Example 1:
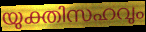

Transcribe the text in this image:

യുക്തിസഹവും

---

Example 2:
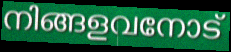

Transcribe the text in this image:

നിങ്ങളവനോട്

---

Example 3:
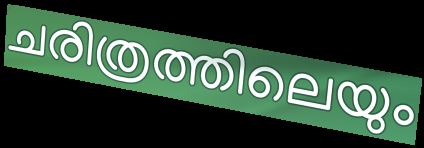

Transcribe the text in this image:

ചരിത്രത്തിലെയും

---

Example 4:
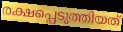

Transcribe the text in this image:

രക്ഷപ്പെടുത്തിയത്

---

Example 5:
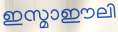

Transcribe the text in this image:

ഇസ്മാഈലി